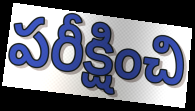
పరీక్షించి